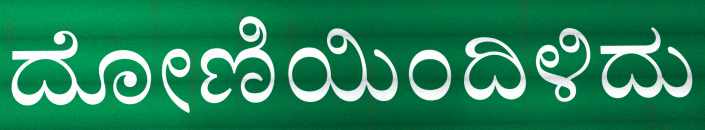
ದೋಣಿಯಿಂದಿಳಿದು